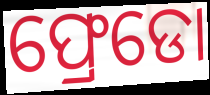
ଫ୍ରେଡୋ